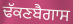
ਢੱਕਣਬੈਗਾਸ